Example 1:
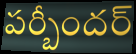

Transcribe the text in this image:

పర్బీందర్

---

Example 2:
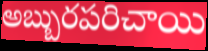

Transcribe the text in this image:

అబ్బురపరిచాయి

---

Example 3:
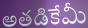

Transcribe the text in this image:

అతడికేమీ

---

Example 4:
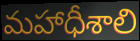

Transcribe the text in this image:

మహాధీశాలి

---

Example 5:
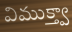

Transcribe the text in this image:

విముక్త్వా